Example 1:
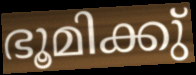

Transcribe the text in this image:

ഭൂമിക്കു്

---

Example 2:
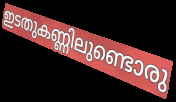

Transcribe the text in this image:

ഇടതുകണ്ണിലുണ്ടൊരു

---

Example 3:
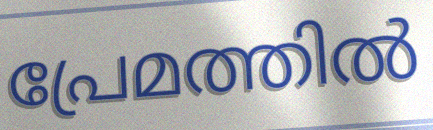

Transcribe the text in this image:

പ്രേമത്തിൽ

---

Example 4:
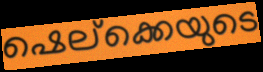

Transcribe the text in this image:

ഷെല്ക്കെയുടെ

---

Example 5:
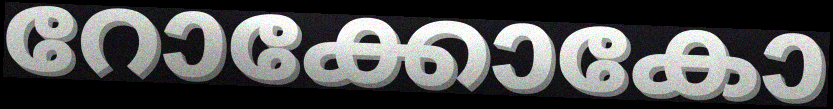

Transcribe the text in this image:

റോക്കോകോ